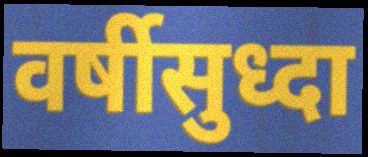
वर्षीसुध्दा